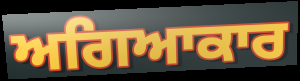
ਅਗਿਆਕਾਰ